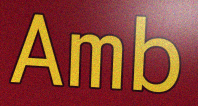
Amb